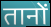
तानों